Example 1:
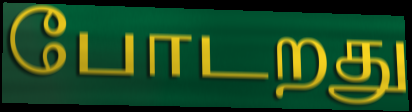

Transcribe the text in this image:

போடறது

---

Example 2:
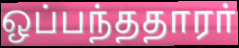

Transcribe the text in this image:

ஒப்பந்ததாரர்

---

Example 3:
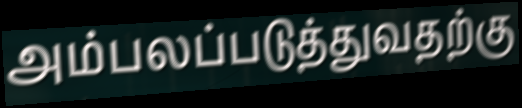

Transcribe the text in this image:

அம்பலப்படுத்துவதற்கு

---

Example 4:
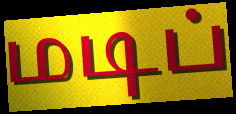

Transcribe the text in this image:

மடிப்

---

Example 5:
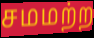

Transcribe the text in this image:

சமமற்ற